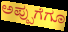
ಅಪ್ಪುಗೆಗೂ